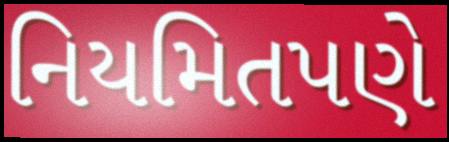
નિયમિતપણે